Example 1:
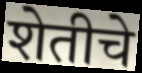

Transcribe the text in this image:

शेतीचे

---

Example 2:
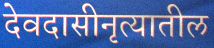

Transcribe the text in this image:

देवदासीनृत्यातील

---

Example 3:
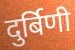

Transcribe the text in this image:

दुर्बिणी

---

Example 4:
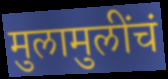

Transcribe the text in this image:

मुलामुलींचं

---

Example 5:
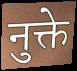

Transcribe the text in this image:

नुक्ते